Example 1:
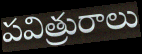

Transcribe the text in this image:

పవిత్రురాలు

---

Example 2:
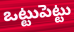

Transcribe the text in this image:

ఒట్టుపెట్టు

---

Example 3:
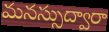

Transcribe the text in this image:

మనస్సుద్వారా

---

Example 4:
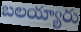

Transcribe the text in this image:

బలయ్యారు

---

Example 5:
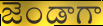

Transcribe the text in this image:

జెండాగా